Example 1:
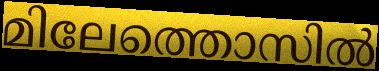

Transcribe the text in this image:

മിലേത്തൊസിൽ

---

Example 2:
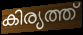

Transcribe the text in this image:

കിര്യത്ത്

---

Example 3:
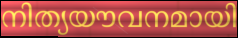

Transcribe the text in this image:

നിത്യയൗവനമായി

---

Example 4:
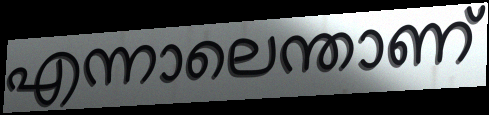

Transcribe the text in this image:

എന്നാലെന്താണ്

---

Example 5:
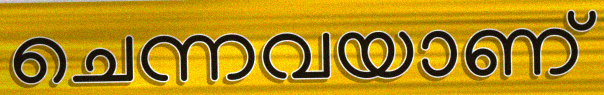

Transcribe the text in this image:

ചെന്നവയാണ്